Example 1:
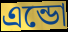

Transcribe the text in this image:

এন্ডো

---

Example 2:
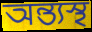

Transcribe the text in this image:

অন্ত্যস্থ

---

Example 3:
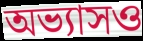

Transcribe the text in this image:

অভ্যাসও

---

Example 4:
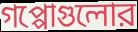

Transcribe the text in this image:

গপ্পোগুলোর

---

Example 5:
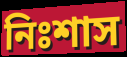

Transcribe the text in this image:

নিঃশাস